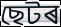
ছেটৰ